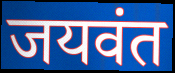
जयवंत